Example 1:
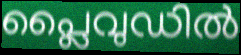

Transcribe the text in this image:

പ്ലൈവുഡിൽ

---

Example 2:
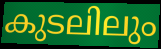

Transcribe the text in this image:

കുടലിലും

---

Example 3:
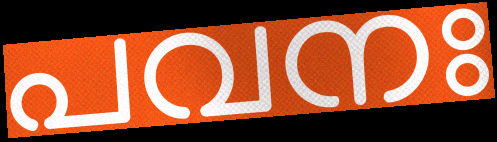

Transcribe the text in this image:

പവനഃ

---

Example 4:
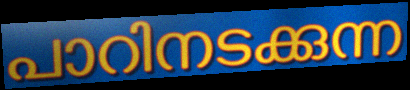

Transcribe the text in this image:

പാറിനടക്കുന്ന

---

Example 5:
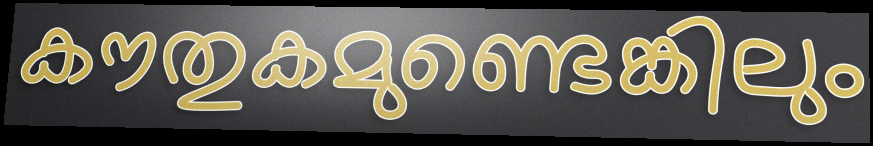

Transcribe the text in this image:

കൗതുകമുണ്ടെങ്കിലും